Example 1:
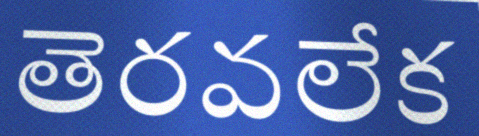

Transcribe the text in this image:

తెరవలేక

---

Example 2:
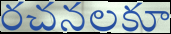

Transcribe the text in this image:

రచనలకూ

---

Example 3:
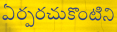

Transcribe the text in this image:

ఏర్పరచుకొంటిని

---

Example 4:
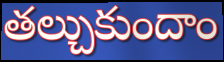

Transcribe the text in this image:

తల్చుకుందాం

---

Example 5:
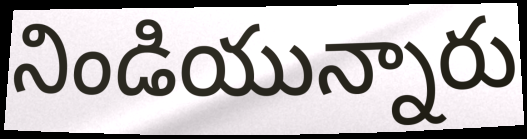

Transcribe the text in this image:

నిండియున్నారు